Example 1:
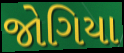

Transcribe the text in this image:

જોગિયા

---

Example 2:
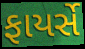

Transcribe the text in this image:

ફાયર્સે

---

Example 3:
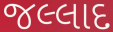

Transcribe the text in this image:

જલ્લાદ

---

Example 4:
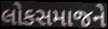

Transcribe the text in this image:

લોકસમાજને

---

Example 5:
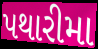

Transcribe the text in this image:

પથારીમા